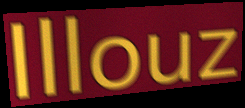
Illouz